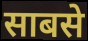
साबसे